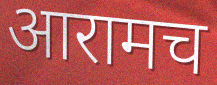
आरामच